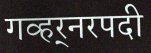
गव्हर्नरपदी